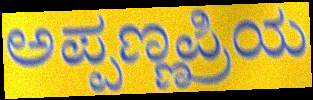
ಅಪ್ಪಣ್ಣಪ್ರಿಯ